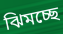
ঝিমচ্ছে